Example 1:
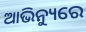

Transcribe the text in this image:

ଆଭିନ୍ୟୁରେ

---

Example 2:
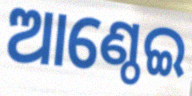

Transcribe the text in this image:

ଆଣ୍ଠେଇ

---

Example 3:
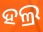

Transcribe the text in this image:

ହଲ୍ର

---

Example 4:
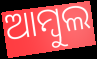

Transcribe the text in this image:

ଆମ୍ବୁଲ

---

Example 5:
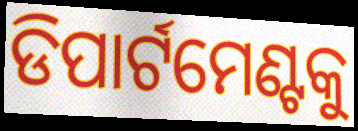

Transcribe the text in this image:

ଡିପାର୍ଟମେଣ୍ଟକୁ